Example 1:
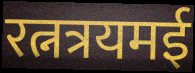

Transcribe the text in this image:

रत्नत्रयमई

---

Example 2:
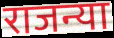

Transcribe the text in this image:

राजन्या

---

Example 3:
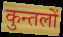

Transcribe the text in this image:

कुन्तलों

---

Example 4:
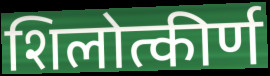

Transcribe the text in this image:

शिलोत्कीर्ण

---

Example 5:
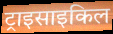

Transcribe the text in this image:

ट्राइसाइकिल